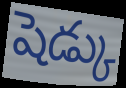
షెడ్కు